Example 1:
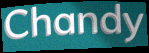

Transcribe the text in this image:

Chandy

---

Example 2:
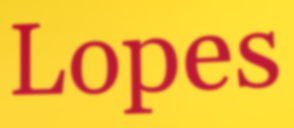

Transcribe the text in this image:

Lopes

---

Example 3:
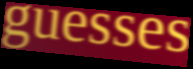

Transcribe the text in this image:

guesses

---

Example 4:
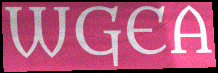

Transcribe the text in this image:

WGEA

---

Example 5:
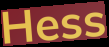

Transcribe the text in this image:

Hess